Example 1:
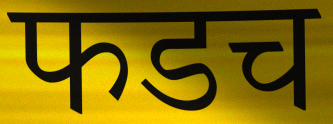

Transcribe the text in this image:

फडच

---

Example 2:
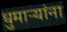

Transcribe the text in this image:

धुमाऱ्यांना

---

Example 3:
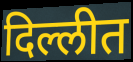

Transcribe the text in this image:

दिल्लीत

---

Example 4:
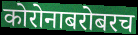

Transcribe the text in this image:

कोरोनाबरोबरच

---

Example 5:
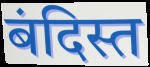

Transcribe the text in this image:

बंदिस्त